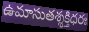
ఉమాసుతశ్శక్తిధరః